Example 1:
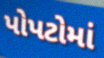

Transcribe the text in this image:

પોપટોમાં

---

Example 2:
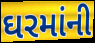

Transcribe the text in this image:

ઘરમાંની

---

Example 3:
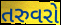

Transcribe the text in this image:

તરુવરો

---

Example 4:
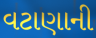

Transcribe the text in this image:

વટાણાની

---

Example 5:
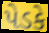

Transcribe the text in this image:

પેડકે